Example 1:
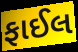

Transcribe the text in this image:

ફાઈલ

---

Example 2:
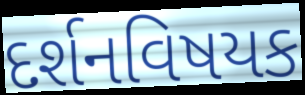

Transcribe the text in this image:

દર્શનવિષયક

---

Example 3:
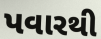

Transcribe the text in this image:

પવારથી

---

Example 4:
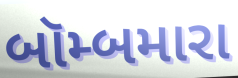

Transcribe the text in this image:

બૉમ્બમારા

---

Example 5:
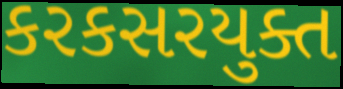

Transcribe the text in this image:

કરકસરયુક્ત